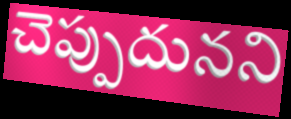
చెప్పుదునని